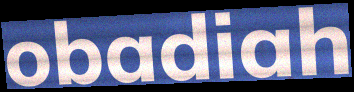
obadiah